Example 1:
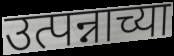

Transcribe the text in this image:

उत्पन्नाच्या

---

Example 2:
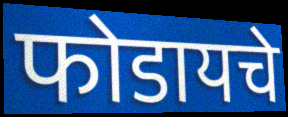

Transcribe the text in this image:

फोडायचे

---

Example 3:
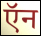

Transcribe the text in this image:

ऍन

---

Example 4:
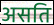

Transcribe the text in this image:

असति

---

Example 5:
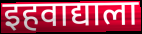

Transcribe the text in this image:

इहवाद्याला